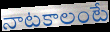
నాటకాలంటే